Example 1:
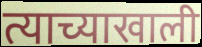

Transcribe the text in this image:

त्याच्याखाली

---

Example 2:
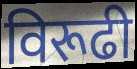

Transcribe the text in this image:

विरूढी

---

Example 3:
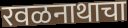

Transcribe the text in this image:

रवळनाथाचा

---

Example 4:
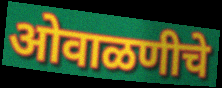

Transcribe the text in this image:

ओवाळणीचे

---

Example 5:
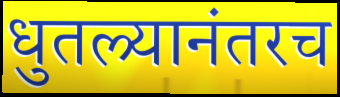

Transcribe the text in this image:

धुतल्यानंतरच